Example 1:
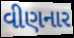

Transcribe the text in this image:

વીણનાર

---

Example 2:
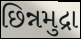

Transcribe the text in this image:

છિન્નમુદ્રા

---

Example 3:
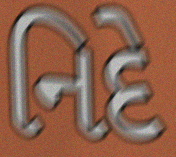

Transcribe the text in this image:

નિદે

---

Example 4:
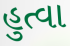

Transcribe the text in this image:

હુત્વા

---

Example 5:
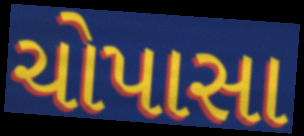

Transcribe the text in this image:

ચોપાસા